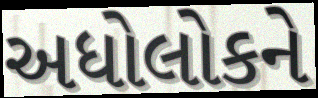
અધોલોકને